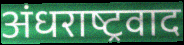
अंधराष्ट्रवाद